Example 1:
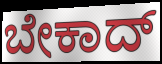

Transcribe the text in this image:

ಬೇಕಾದ್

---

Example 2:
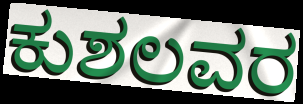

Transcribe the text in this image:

ಕುಶಲವರ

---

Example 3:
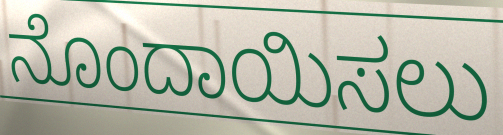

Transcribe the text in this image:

ನೊಂದಾಯಿಸಲು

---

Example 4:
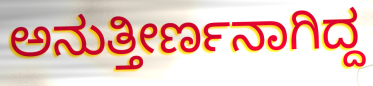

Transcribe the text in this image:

ಅನುತ್ತೀರ್ಣನಾಗಿದ್ದ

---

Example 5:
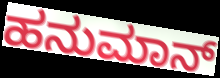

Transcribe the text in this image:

ಹನುಮಾನ್